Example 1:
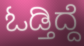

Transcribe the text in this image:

ಓಡ್ತಿದ್ದೆ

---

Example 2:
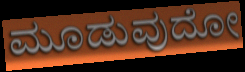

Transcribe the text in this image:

ಮೂಡುವುದೋ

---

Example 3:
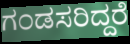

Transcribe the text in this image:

ಗಂಡಸರಿದ್ದರೆ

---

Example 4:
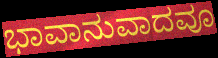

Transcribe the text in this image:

ಭಾವಾನುವಾದವೂ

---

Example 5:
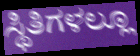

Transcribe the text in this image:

ಸ್ಥಿತಿಗಳಲ್ಲೂ